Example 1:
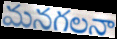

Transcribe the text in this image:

మనగలనా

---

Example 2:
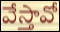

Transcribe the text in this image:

వేస్తావో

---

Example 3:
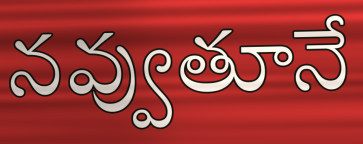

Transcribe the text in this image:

నవ్వుతూనే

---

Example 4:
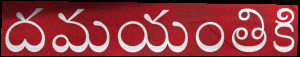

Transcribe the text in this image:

దమయంతికి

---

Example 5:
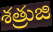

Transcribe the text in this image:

శత్రుజి